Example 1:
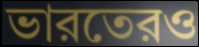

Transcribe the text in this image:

ভারতেরও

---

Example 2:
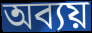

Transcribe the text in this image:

অব্যয়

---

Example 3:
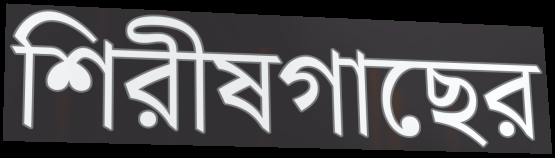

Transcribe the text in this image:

শিরীষগাছের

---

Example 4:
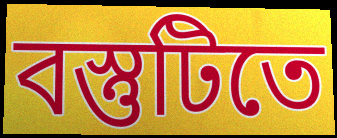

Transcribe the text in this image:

বস্তুটিতে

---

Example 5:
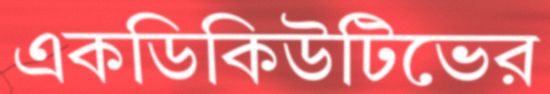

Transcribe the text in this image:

একডিকিউটিভের